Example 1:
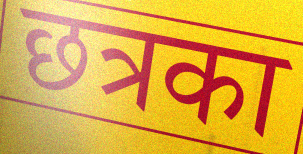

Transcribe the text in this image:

छत्रका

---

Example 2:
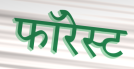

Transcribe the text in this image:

फॉरेस्‍ट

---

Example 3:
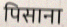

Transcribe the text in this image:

पिसाना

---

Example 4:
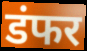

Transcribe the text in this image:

डंफर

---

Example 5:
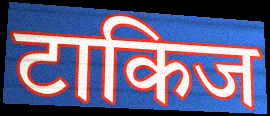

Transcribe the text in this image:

टाकिज